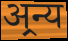
अ्रन्य